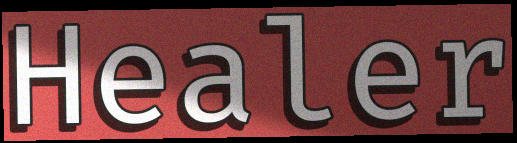
Healer